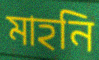
মাহনি